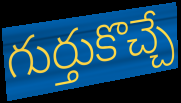
గుర్తుకొచ్చే